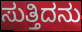
ಸುತ್ತಿದನು